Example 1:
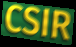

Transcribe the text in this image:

CSIR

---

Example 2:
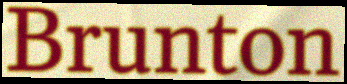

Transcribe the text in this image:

Brunton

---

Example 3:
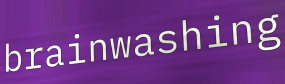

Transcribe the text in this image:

brainwashing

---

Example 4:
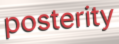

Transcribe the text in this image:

posterity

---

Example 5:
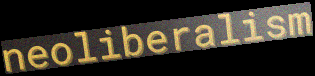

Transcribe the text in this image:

neoliberalism